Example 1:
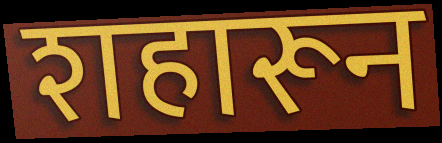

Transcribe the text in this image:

शहारून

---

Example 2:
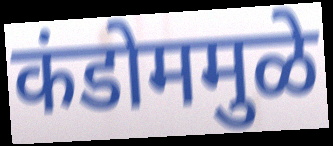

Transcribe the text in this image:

कंडोममुळे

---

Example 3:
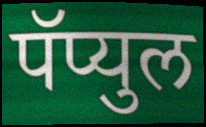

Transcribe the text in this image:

पॅप्युल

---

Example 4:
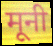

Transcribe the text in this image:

मूनी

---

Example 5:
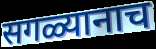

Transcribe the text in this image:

सगळ्यानाच